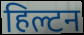
हिल्टन